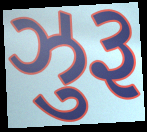
ઝુરૂ